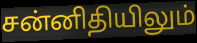
சன்னிதியிலும்